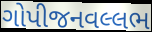
ગોપીજનવલ્લભ